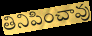
తినిపించావు